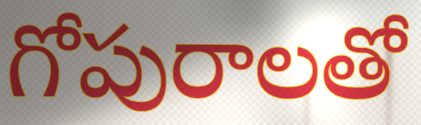
గోపురాలతో